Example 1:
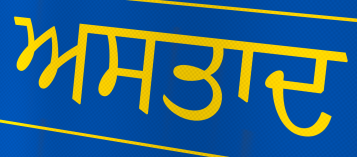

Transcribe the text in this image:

ਅਸਤਾਦ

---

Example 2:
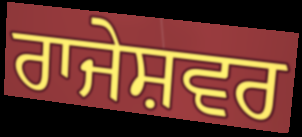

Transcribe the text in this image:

ਰਾਜੇਸ਼ਵਰ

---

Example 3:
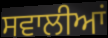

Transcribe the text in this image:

ਸਵਾਲੀਆਂ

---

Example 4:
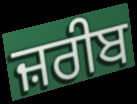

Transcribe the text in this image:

ਜ਼ਰੀਬ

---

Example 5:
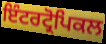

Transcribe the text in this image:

ਇੰਟਰਟ੍ਰੋਪਿਕਲ